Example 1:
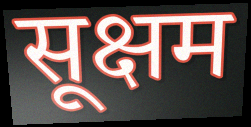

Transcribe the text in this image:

सूक्षम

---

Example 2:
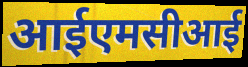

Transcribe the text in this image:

आईएमसीआई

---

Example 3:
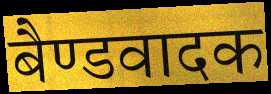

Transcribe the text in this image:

बैण्डवादक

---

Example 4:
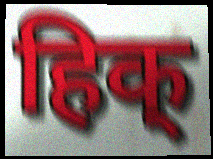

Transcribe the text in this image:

हिक्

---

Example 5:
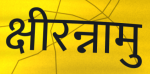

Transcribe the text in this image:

क्षीरन्नामु